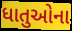
ધાતુઓના